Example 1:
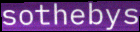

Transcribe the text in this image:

sothebys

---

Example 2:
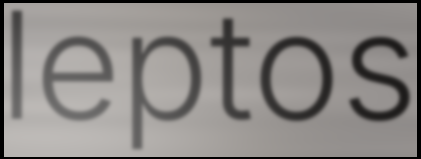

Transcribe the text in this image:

leptos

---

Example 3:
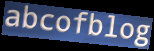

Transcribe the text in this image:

abcofblog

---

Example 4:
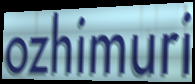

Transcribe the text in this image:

ozhimuri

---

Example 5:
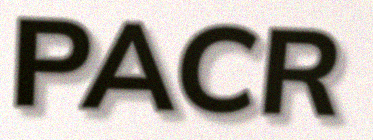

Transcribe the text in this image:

PACR